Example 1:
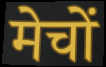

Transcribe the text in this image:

मेचों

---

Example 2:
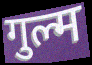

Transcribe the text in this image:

गुल्म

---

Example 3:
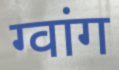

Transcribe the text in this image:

ग्वांग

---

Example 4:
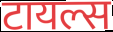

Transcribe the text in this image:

टायल्स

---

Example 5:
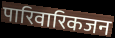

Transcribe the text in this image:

पारिवारिकजन